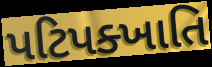
પટિપક્ખાતિ